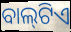
ବାଲ୍‍ଟିଏ